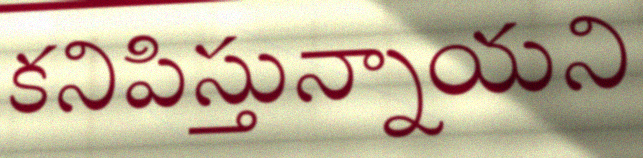
కనిపిస్తున్నాయని